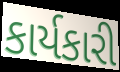
કાર્યકારી